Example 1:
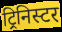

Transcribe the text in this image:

ट्रिनिस्टर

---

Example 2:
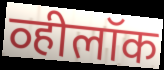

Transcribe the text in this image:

व्हीलॉक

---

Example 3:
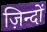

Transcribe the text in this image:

ज़िन्दों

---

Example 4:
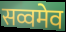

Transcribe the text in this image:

सव्वमेव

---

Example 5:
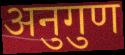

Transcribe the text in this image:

अनुगुण